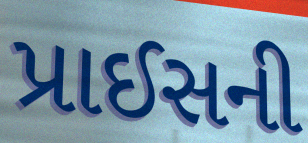
પ્રાઈસની